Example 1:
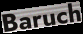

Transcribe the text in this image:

Baruch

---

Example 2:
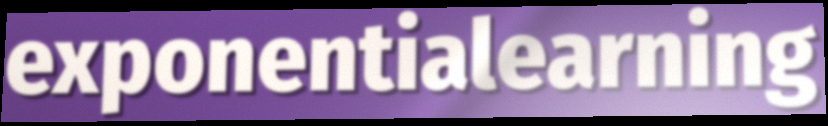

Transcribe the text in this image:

exponentialearning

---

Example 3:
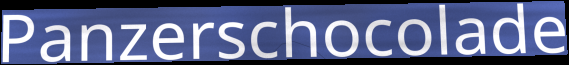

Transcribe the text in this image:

Panzerschocolade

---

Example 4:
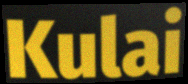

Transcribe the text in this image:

Kulai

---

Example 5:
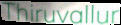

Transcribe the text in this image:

Thiruvallur